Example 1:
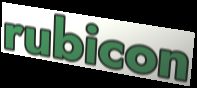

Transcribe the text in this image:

rubicon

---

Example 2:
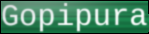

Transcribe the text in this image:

Gopipura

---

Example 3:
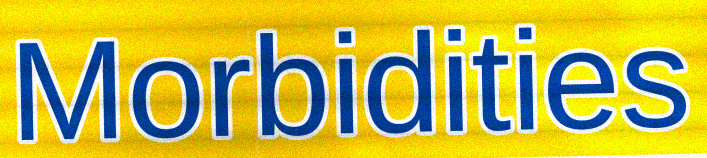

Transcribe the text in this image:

Morbidities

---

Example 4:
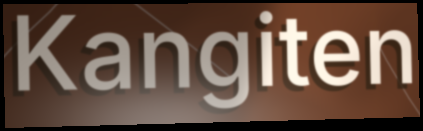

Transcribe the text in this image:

Kangiten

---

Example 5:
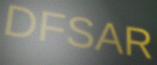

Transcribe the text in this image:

DFSAR